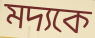
মদ্যকে